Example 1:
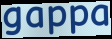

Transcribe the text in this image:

gappa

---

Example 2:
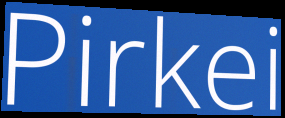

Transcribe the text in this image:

Pirkei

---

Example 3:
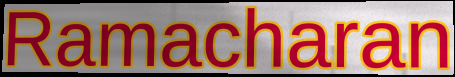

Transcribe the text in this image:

Ramacharan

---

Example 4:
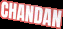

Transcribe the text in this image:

CHANDAN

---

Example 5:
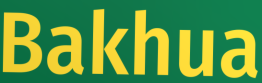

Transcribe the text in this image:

Bakhua